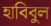
হাবিবুল